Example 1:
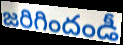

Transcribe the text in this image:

జరిగిందండీ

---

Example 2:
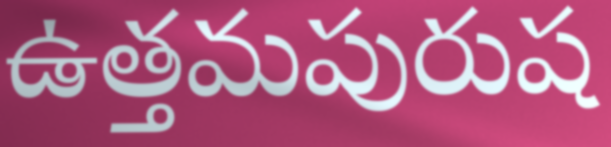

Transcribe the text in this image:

ఉత్తమపురుష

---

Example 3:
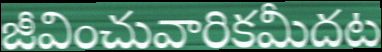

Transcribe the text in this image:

జీవించువారికమీదట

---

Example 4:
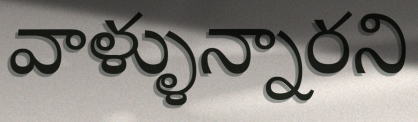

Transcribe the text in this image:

వాళ్ళున్నారని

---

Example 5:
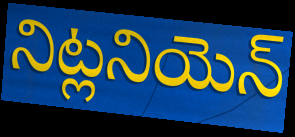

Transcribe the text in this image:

నిట్లనియెన్